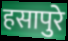
हसापुरे